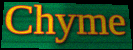
Chyme